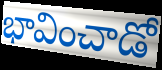
భావించాడో